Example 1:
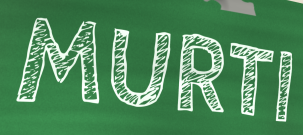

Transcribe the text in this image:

MURTI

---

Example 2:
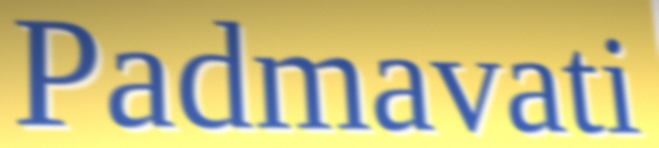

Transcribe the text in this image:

Padmavati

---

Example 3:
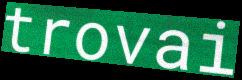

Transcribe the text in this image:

trovai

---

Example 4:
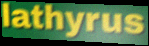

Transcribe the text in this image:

lathyrus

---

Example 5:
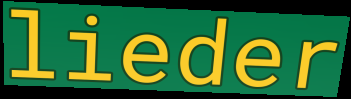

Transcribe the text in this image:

lieder